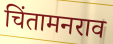
चिंतामनराव